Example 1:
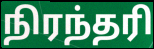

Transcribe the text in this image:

நிரந்தரி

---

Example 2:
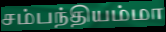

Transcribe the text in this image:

சம்பந்தியம்மா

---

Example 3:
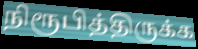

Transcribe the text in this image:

நிரூபித்திருக்க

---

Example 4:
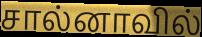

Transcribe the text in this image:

சால்னாவில்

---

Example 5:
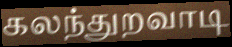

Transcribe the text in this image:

கலந்துறவாடி